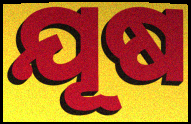
ଯୂଷ